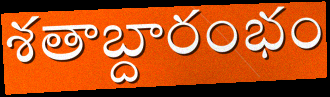
శతాబ్దారంభం